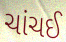
ચાંચઈ